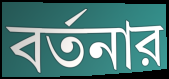
বর্তনার